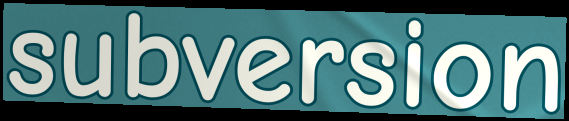
subversion